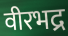
वीरभद्र